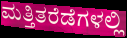
ಮತ್ತಿತರೆಡೆಗಳಲ್ಲಿ